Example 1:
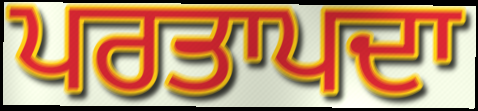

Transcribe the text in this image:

ਪਰਤਾਪਦਾ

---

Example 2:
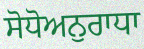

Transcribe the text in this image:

ਸੋਧੋਅਨੁਰਾਧਾ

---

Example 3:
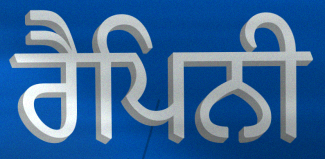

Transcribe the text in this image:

ਰੈਪਿਨੀ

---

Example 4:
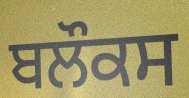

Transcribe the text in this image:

ਬਲੌਕਸ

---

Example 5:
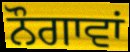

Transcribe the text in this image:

ਨੌਗਾਵਾਂ